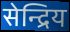
सेन्द्रिय